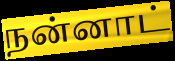
நன்னாட்